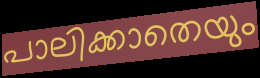
പാലിക്കാതെയും